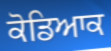
ਕੋਡਿਆਕ